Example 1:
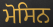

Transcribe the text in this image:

ਮੋਸਿਨ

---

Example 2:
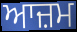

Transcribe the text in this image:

ਆਜ਼ਮ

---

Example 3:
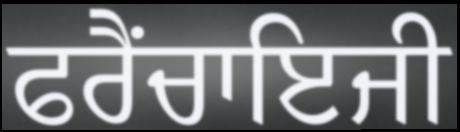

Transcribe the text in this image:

ਫਰੈਂਚਾਇਜੀ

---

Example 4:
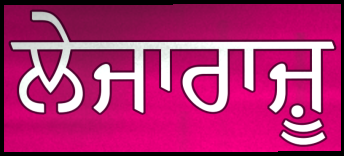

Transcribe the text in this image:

ਲੇਜਾਰਾਜ਼ੂ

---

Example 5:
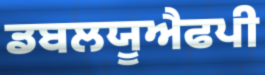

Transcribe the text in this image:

ਡਬਲਯੂਐਫਪੀ